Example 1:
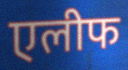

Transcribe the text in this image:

एलीफ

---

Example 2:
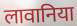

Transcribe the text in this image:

लावानिया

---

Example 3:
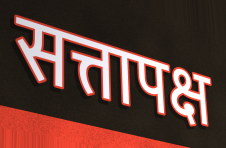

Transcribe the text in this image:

सत्तापक्ष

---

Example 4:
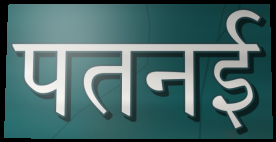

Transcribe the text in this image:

पतनई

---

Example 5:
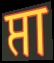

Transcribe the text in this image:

प्ता